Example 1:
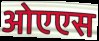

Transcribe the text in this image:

ओएएस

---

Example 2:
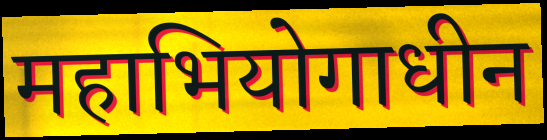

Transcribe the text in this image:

महाभियोगाधीन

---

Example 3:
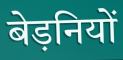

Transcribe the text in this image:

बेड़नियों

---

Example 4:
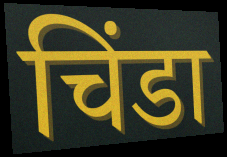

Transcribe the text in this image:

चिंडा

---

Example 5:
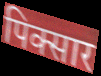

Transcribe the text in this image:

पिक्सार